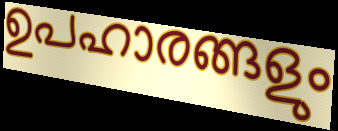
ഉപഹാരങ്ങളും